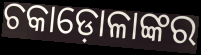
ଚକାଡ଼ୋଳାଙ୍କର